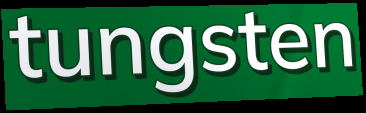
tungsten